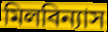
মিলবিন্যাস